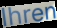
Ihren